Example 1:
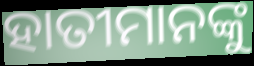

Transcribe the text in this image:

ହାତୀମାନଙ୍କୁ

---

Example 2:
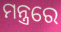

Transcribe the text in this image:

ମନ୍ତ୍ରରେ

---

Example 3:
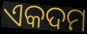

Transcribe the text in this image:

ଏକଦମ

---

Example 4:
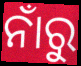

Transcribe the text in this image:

ନାଁରୁ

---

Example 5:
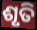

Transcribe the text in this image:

ଶୃତି